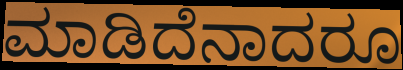
ಮಾಡಿದೆನಾದರೂ